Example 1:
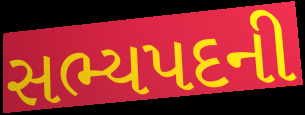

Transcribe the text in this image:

સભ્યપદની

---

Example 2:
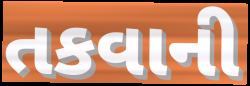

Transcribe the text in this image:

તકવાની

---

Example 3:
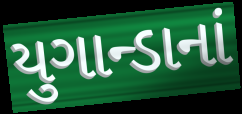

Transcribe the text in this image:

યુગાન્ડાનાં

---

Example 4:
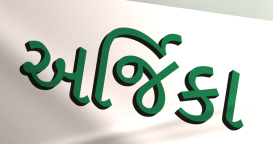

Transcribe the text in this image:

અર્જિકા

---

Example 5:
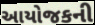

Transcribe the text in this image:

આયોજકની